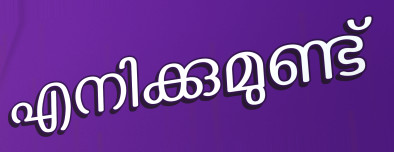
എനിക്കുമുണ്ട്